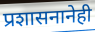
प्रशासनानेही